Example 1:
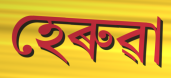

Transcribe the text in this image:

হেৰুৱা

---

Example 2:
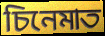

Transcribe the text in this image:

চিনেমাত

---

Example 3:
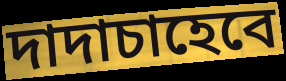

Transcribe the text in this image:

দাদাচাহেবে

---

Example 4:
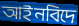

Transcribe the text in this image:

আইনবিদে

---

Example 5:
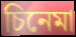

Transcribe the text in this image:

চিনেমা